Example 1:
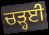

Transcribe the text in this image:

ਚੜ੍ਹਈ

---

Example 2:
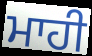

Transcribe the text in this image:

ਮਾਹੀ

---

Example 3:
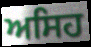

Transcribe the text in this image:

ਅਸਿਹ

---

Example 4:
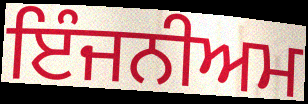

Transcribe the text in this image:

ਇੰਜਨੀਅਮ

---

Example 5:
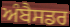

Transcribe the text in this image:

ਅੰਬੈਸਡਰ